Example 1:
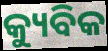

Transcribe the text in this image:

କ୍ୟୁବିକ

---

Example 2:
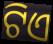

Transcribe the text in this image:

ଟିଏ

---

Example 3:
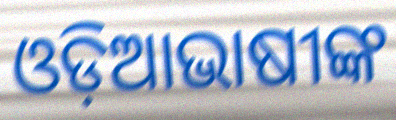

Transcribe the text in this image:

ଓଡ଼ିଆଭାଷୀଙ୍କ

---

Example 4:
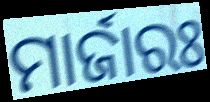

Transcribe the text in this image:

ମାର୍ଜାରଃ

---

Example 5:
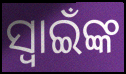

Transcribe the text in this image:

ସ୍ଵାଇଁଙ୍କ